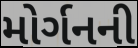
મોર્ગનની